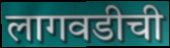
लागवडीची